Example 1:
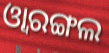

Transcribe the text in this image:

ଓ୍ବାରଙ୍ଗଲ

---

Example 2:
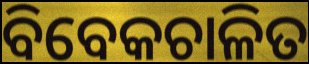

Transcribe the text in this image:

ବିବେକଚାଳିତ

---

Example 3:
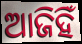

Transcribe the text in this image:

ଆଜିହିଁ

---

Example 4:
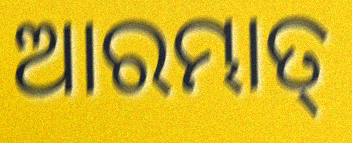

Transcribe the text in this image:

ଆରମ୍ଭାତ୍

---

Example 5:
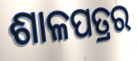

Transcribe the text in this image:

ଶାଳପତ୍ରର